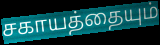
சகாயத்தையும்